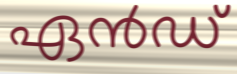
ഏൻഡ്